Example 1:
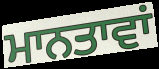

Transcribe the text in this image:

ਮਾਨਤਾਵਾਂ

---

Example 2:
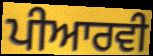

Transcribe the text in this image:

ਪੀਆਰਵੀ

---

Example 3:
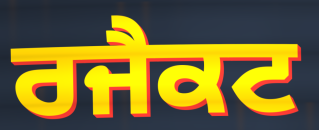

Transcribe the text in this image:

ਰਜੈਕਟ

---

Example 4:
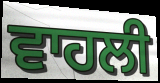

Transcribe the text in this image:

ਵਾਹਲੀ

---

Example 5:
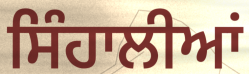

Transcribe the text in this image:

ਸਿੰਹਾਲੀਆਂ